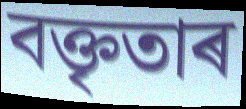
বক্তৃতাৰ